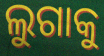
ଲୁଗାକୁ